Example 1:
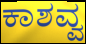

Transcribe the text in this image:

ಕಾಶವ್ವ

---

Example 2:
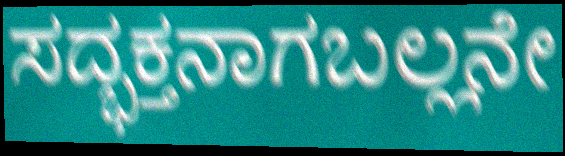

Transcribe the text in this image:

ಸದ್ಭಕ್ತನಾಗಬಲ್ಲನೇ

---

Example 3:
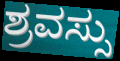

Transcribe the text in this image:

ಶ್ರವಸ್ಸು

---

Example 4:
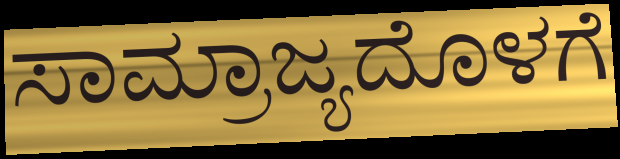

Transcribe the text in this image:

ಸಾಮ್ರಾಜ್ಯದೊಳಗೆ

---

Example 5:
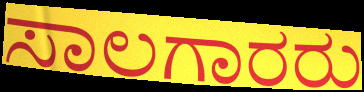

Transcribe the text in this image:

ಸಾಲಗಾರರು